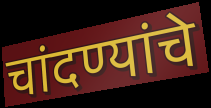
चांदण्यांचे